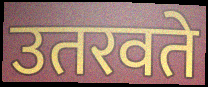
उतरवते